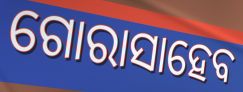
ଗୋରାସାହେବ